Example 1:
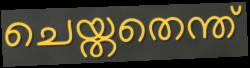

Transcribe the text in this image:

ചെയ്തതെന്ത്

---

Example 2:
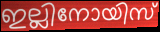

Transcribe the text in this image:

ഇല്ലിനോയിസ്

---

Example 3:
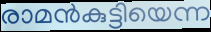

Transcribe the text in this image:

രാമൻകുട്ടിയെന്ന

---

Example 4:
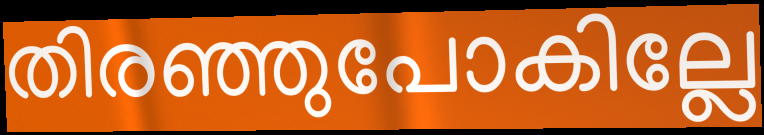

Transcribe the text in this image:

തിരഞ്ഞുപോകില്ലേ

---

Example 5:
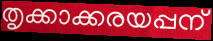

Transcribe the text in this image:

തൃക്കാക്കരയപ്പന്